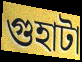
গুহাটা